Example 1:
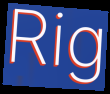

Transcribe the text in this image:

Rig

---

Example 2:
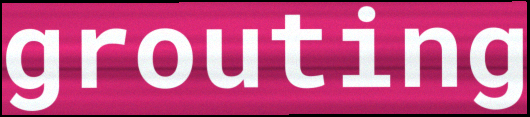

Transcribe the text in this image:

grouting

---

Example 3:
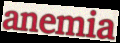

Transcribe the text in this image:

anemia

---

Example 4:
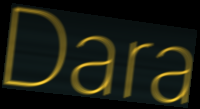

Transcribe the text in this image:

Dara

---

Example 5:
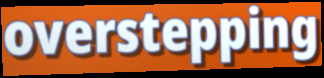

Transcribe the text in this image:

overstepping